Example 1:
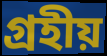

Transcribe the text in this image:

গ্রহীয়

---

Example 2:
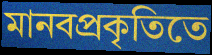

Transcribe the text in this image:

মানবপ্রকৃতিতে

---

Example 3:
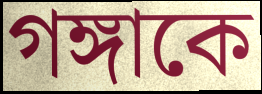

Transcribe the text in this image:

গঙ্গাকে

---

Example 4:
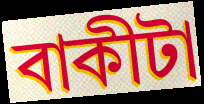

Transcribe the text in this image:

বাকীটা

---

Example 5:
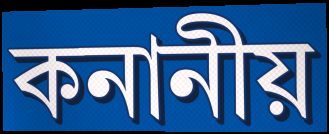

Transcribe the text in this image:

কনানীয়